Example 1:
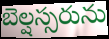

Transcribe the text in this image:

బెల్షస్సరును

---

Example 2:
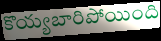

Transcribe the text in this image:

కొయ్యబారిపోయింది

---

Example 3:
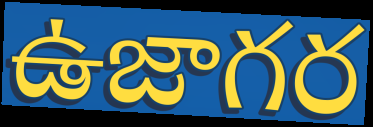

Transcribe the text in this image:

ఉజాగర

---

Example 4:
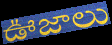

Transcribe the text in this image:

ఊజాలు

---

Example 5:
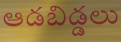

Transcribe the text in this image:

ఆడబిడ్డలు